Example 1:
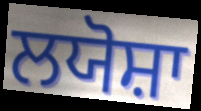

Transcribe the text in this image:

ਲਯੋਸ਼ਾ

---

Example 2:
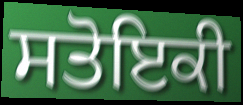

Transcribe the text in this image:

ਸਤੋਇਕੀ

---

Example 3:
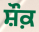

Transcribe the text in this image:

ਸ਼ੌਕ਼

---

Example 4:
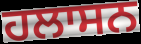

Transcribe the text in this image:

ਹਲਾਸਨ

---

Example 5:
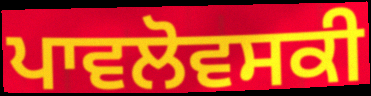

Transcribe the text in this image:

ਪਾਵਲੋਵਸਕੀ